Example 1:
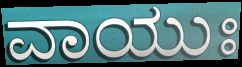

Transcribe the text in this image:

ವಾಯುಃ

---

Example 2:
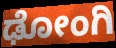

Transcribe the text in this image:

ಢೋಂಗಿ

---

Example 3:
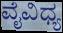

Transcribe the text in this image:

ವೈವಿಧ್ಯ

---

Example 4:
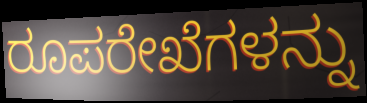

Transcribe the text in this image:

ರೂಪರೇಖೆಗಳನ್ನು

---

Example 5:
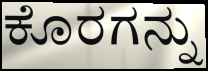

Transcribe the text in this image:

ಕೊರಗನ್ನು